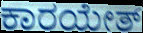
ಕಾರಯೇತ್